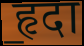
हृ॒दा